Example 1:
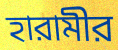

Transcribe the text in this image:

হারামীর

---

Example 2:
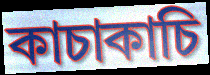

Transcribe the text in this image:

কাচাকাচি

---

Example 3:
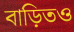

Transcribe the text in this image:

বাড়িতও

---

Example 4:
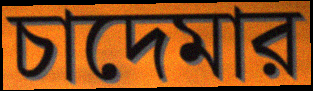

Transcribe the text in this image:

চাদেমার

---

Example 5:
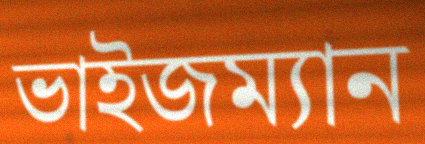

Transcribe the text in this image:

ভাইজম্যান